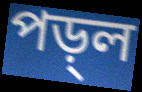
পড়্ল